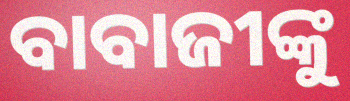
ବାବାଜୀଙ୍କୁ